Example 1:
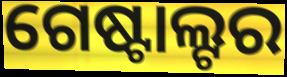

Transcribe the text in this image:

ଗେଷ୍ଟାଲ୍ଟର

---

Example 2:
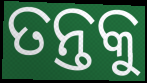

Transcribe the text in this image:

ତନ୍ତକୁ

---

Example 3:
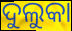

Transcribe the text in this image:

ଦୁଲୁକା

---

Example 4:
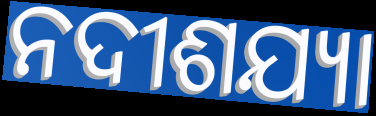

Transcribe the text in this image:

ନଦୀଶଯ୍ୟା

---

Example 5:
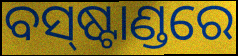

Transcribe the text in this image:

ବସ୍‌ଷ୍ଟାଣ୍ଡରେ